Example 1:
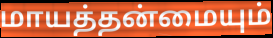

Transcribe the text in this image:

மாயத்தன்மையும்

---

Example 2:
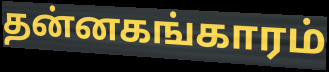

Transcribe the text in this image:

தன்னகங்காரம்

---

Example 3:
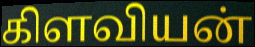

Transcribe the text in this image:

கிளவியன்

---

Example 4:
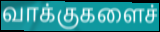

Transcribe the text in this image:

வாக்குகளைச்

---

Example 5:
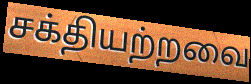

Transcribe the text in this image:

சக்தியற்றவை